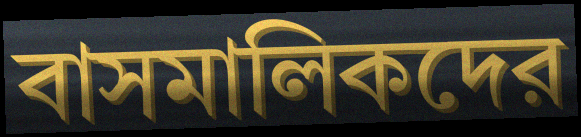
বাসমালিকদের